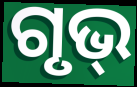
ଗୃଭ୍